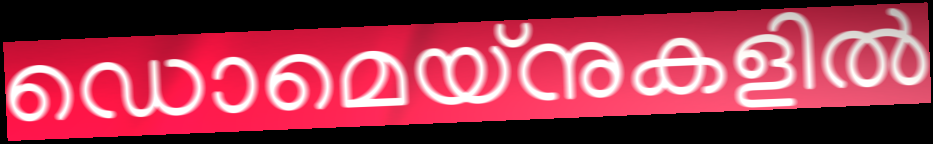
ഡൊമെയ്നുകളിൽ